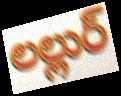
లల్లుర్